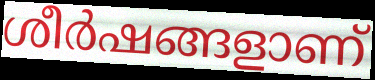
ശീർഷങ്ങളാണ്